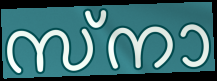
സ്‌നാ